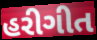
હરીગીત